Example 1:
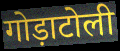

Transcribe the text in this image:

गोड़ाटोली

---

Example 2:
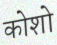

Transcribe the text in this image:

कोशो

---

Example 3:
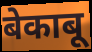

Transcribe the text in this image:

बेकाबू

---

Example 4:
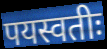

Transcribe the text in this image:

पयस्वतीः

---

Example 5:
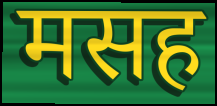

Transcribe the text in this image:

मसह